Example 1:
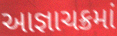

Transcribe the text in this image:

આજ્ઞાચક્રમાં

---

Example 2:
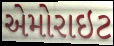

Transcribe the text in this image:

એમોરાઇટ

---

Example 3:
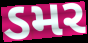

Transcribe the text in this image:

ડમર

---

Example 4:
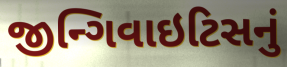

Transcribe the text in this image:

જીન્ગિવાઇટિસનું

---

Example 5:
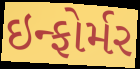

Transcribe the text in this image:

ઇન્ફોર્મર